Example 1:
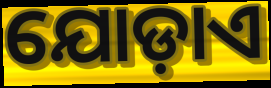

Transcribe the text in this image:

ଯୋଡ଼ାଏ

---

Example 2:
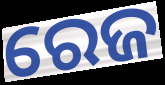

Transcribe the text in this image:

ରେଜ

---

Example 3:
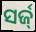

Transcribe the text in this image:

ସର୍ଜ୍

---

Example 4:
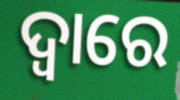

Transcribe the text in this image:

ଦ୍ବାରେ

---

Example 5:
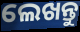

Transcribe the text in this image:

ଲେଖନ୍ତୁ